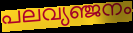
പലവ്യഞ്ജനം